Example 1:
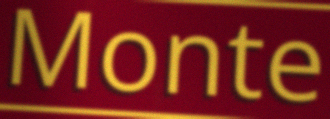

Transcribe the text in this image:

Monte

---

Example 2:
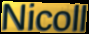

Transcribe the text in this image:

Nicoll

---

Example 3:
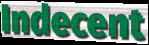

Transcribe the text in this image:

Indecent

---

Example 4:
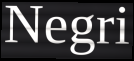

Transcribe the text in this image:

Negri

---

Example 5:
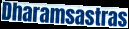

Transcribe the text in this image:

Dharamsastras